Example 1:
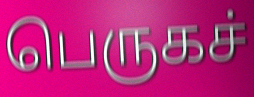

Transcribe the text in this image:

பெருகச்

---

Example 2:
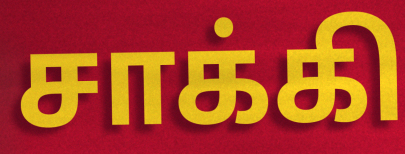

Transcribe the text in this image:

சாக்கி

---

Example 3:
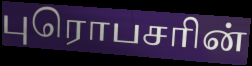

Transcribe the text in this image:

புரொபசரின்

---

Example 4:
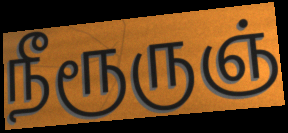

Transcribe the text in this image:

நீரூருஞ்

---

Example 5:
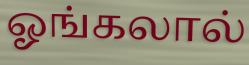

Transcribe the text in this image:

ஓங்கலால்